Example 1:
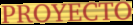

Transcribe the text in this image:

PROYECTO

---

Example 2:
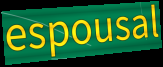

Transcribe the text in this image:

espousal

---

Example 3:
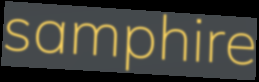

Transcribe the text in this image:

samphire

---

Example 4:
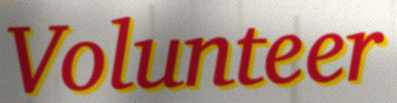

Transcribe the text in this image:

Volunteer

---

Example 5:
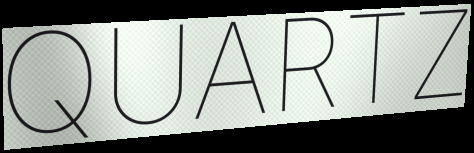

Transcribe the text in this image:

QUARTZ